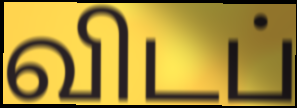
விடப்